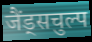
जैंड्सचुल्प